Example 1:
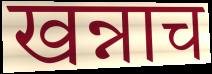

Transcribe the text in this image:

खन्नाच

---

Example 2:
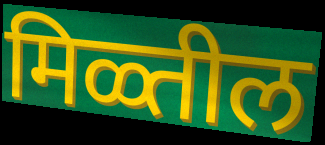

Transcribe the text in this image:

मिळ्तील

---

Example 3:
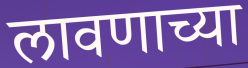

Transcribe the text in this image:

लावणाच्या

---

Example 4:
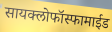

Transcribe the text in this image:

सायक्लोफॉस्फामाईड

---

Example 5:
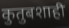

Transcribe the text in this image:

कुतुबशाही